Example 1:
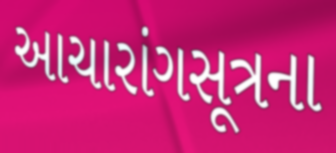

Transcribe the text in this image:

આચારાંગસૂત્રના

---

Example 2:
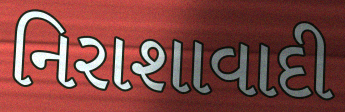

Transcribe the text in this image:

નિરાશાવાદી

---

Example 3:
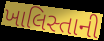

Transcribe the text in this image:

ખાલિસ્તાની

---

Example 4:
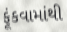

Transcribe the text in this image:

ફૂંકવામાંથી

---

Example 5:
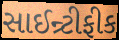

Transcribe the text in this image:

સાઈન્ર્ટીફીક